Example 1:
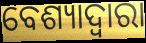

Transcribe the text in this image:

ବେଶ୍ୟାଦ୍ୱାରା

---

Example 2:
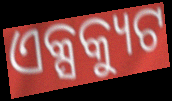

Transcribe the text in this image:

ଏକ୍ସକ୍ୟୁଟ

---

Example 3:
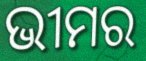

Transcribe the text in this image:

ଭୀମର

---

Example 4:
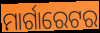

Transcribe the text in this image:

ମାର୍ଗାରେଟର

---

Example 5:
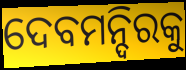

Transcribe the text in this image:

ଦେବମନ୍ଦିରକୁ